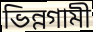
ভিন্নগামী